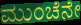
ಮುಂಚೆನೇ